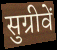
सुग्रीवें